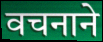
वचनाने